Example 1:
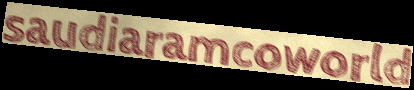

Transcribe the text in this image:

saudiaramcoworld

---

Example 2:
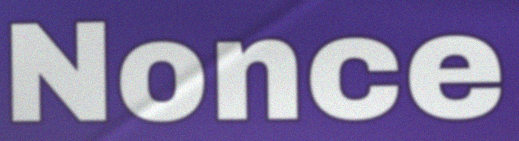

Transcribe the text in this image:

Nonce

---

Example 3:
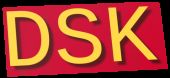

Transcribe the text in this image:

DSK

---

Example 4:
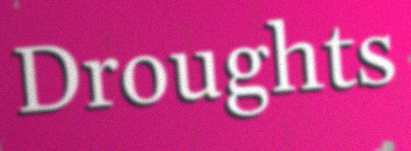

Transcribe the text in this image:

Droughts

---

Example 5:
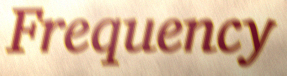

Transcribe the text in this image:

Frequency